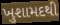
ખુશામદથી